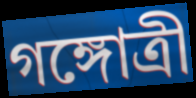
গঙ্গোত্ৰী